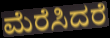
ಮೆರೆಸಿದರೆ